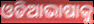
ଓଡିଆଭାଷାକୁ